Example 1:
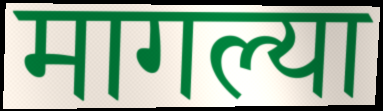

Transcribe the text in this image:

मागल्या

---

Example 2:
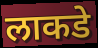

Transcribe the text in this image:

लाकडे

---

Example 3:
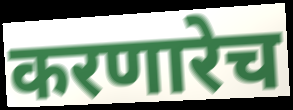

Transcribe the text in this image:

करणारेच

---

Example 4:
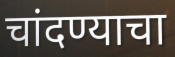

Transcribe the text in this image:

चांदण्याचा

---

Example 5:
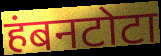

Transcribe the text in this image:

हंबनटोटा